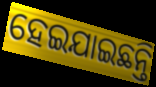
ହେଇଯାଇଛନ୍ତି